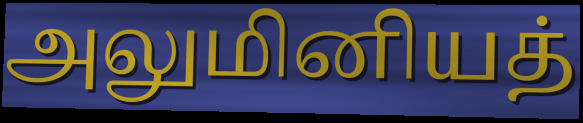
அலுமினியத்